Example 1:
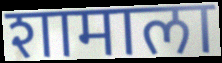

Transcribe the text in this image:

शामाला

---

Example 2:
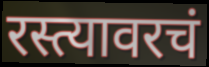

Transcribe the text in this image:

रस्त्यावरचं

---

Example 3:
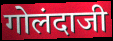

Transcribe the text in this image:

गोलंदाजी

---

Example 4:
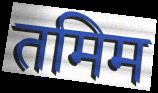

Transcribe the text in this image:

तमिम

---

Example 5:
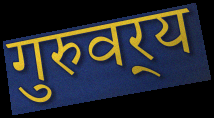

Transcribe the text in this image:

गुरुवर्य